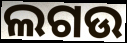
ଲଗଉ